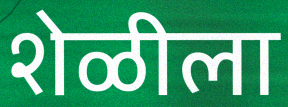
शेळीला